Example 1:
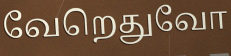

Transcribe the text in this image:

வேறெதுவோ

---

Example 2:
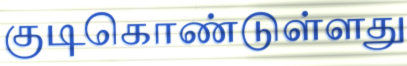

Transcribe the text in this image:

குடிகொண்டுள்ளது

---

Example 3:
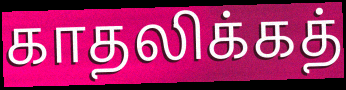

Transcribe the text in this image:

காதலிக்கத்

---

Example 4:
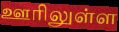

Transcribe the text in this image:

ஊரிலுள்ள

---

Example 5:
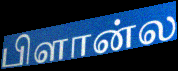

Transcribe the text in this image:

பிளான்ல